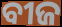
ବୀଜ